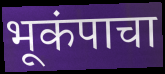
भूकंपाचा